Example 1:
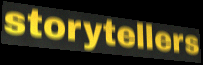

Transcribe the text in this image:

storytellers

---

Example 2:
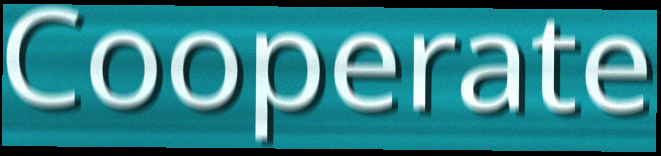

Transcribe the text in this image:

Cooperate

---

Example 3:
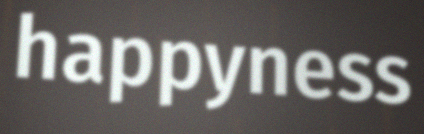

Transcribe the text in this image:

happyness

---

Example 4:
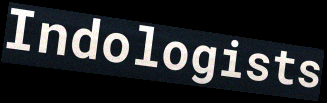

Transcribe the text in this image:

Indologists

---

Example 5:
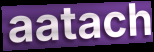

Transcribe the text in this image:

aatach